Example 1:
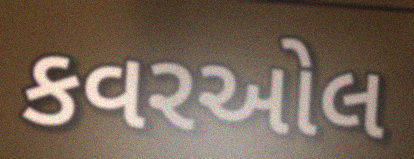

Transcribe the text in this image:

કવરઓલ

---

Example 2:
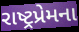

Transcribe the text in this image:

રાષ્ટ્રપ્રેમના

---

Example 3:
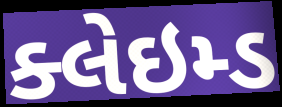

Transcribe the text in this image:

ક્લેઇમ્ડ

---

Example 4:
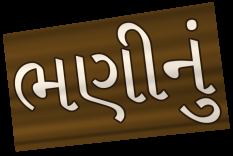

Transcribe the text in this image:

ભણીનું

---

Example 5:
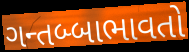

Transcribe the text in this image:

ગન્તબ્બાભાવતો